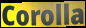
Corolla